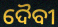
ଦୈବୀ